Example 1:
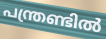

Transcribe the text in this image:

പന്ത്രണ്ടിൽ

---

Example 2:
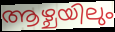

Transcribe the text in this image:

ആഴ്ചയിലും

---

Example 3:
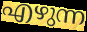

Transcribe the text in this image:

എഴുന്ന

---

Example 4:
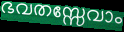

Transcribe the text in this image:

ഭവതസ്സേവാം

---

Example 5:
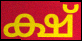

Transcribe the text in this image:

ക്ഷ്